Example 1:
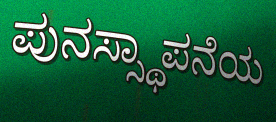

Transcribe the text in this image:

ಪುನಸ್ಸ್ಥಾಪನೆಯ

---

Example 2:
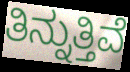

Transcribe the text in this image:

ತಿನ್ನುತ್ತಿವೆ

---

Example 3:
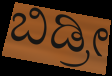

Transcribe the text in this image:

ಬಿಡ್ರೀ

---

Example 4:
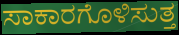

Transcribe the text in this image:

ಸಾಕಾರಗೊಳಿಸುತ್ತ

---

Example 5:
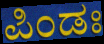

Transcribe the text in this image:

ಪಿಂಡಃ